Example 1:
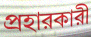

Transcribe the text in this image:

প্রহারকারী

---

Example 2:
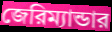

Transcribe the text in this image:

জেরিম্যান্ডার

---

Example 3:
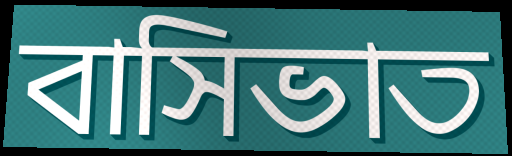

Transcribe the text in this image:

বাসিভাত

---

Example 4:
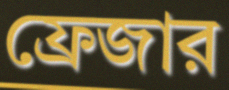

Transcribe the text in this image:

ফ্রেজার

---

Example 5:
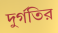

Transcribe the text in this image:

দুর্গতির